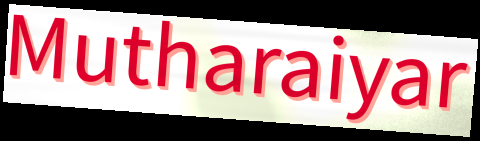
Mutharaiyar